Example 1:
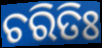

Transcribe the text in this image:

ଚରିତିଃ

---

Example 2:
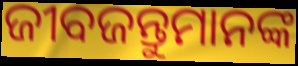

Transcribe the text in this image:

ଜୀବଜନ୍ତୁମାନଙ୍କ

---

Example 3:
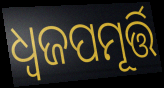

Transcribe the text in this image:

ଧ୍ୱଜପମୂର୍ତ୍ତି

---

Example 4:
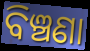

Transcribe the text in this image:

ବିଞ୍ଚଣା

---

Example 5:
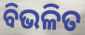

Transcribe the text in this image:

ବିଭଳିତ